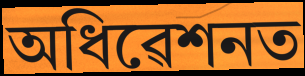
অধিৱেশনত